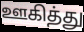
ஊகித்து